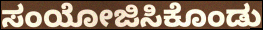
ಸಂಯೋಜಿಸಿಕೊಂಡು